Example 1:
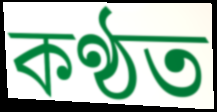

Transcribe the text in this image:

কণ্ঠত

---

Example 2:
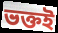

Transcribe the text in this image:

ভক্তই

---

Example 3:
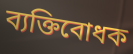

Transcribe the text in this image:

ব্যক্তিবোধক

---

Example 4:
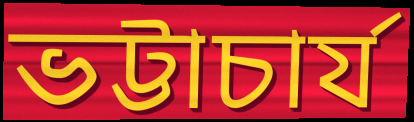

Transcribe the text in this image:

ভট্টাচাৰ্য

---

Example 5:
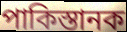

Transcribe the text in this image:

পাকিস্তানক